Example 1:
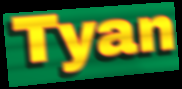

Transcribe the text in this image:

Tyan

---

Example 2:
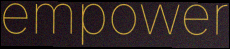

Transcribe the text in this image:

empower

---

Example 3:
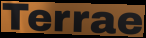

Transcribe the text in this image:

Terrae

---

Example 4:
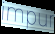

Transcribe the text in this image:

impur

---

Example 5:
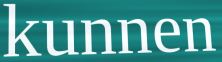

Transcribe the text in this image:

kunnen